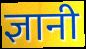
ज्ञानी